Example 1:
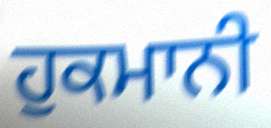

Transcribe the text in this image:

ਹੁਕਮਾਨੀ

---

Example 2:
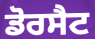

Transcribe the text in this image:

ਡੋਰਸੈਟ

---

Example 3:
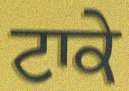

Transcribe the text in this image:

ਟਾਕੇ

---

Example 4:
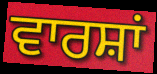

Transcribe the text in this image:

ਵਾਰਸ਼ਾਂ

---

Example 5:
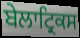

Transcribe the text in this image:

ਬੇਲਾਟ੍ਰਿਕਸ